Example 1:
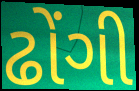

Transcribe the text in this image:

ઢોંગી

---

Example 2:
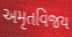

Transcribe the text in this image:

અમૃતવિજય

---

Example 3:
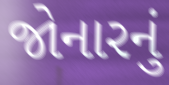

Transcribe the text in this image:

જોનારનું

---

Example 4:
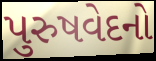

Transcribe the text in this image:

પુરુષવેદનો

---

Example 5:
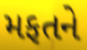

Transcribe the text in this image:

મફતને